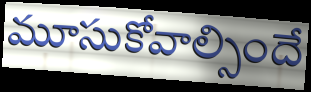
మూసుకోవాల్సిందే